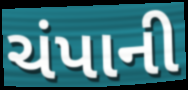
ચંપાની